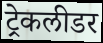
ट्रेकलीडर